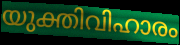
യുക്തിവിഹാരം